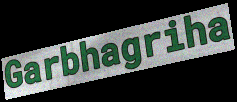
Garbhagriha